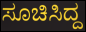
ಸೂಚಿಸಿದ್ದ